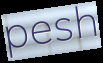
pesh